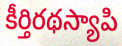
కీర్తిరథస్యాపి